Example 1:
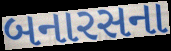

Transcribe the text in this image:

બનારસના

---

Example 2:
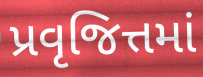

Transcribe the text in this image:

પ્રવૃજિત્તમાં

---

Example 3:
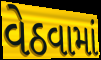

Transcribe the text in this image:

વેઠવામાં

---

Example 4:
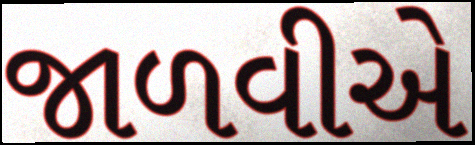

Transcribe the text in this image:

જાળવીએ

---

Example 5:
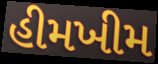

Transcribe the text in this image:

હીમખીમ